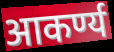
आकर्ण्य